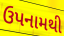
ઉપનામથી